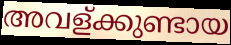
അവള്ക്കുണ്ടായ